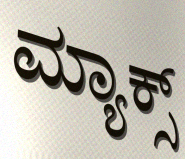
ಮ್ಯಾಕ್ಸ್